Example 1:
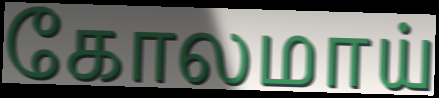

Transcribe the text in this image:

கோலமாய்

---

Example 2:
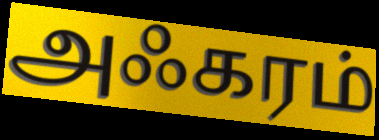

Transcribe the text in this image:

அஃகரம்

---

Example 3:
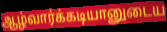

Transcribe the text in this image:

ஆழ்வார்க்கடியானுடைய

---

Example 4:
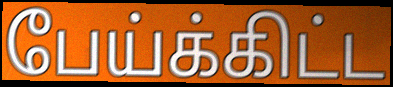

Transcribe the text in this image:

பேய்க்கிட்ட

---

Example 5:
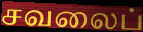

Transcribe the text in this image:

சவலைப்